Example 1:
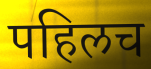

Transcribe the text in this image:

पहिलच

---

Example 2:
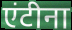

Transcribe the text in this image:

एंटीना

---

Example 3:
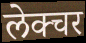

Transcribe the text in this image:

लेक्चर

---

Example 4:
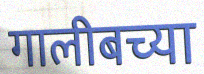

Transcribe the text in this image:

गालीबच्या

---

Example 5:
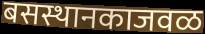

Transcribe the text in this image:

बसस्थानकाजवळ